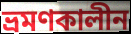
ভ্রমণকালীন